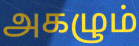
அகழும்